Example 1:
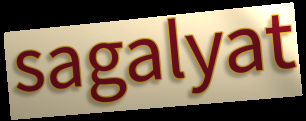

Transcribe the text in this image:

sagalyat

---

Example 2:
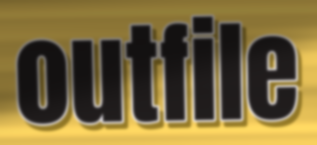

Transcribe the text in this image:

outfile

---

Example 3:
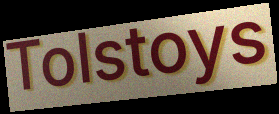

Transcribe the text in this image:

Tolstoys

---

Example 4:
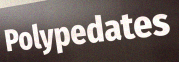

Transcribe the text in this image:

Polypedates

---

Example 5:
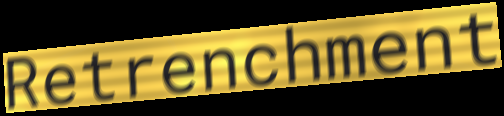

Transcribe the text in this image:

Retrenchment